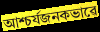
আশ্চৰ্যজনকভাৱে